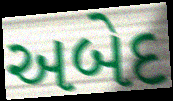
અબેદ